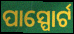
ପାସ୍ପୋର୍ଟ